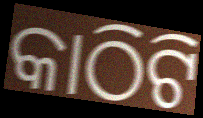
କାଠିଟି